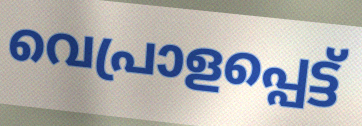
വെപ്രാളപ്പെട്ട്